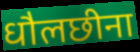
धौलछीना